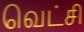
வெட்சி